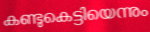
കണ്ടുകെട്ടിയെന്നും